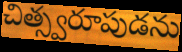
చిత్స్వరూపుడను